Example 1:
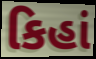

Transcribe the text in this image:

કિહાં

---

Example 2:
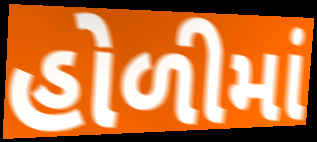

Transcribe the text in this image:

હોળીમાં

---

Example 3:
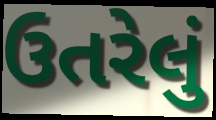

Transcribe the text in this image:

ઉતરેલું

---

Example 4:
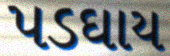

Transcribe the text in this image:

પડઘાય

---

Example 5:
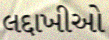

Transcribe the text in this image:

લદ્દાખીઓ